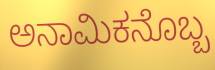
ಅನಾಮಿಕನೊಬ್ಬ